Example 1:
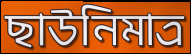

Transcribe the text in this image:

ছাউনিমাত্র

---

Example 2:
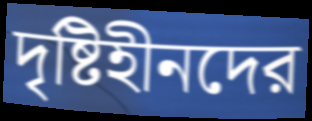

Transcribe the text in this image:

দৃষ্টিহীনদের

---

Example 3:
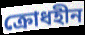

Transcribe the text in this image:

ক্রোধহীন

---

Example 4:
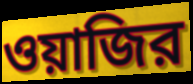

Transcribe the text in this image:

ওয়াজির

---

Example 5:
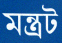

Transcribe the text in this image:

মন্ত্রট